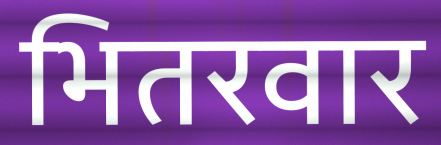
भितरवार